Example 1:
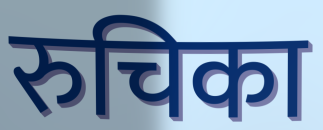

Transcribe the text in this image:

रुचिका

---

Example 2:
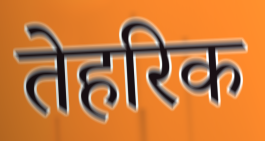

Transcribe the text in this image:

तेहरिक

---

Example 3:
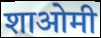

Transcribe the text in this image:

शाओमी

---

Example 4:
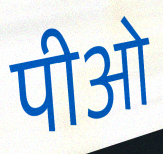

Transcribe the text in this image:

पीओ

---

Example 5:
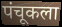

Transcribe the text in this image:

पंचूकला